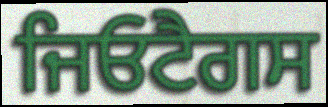
ਜਿਓਟੈਗਸ